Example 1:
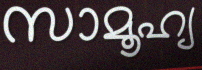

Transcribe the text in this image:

സാമൂഹ്യ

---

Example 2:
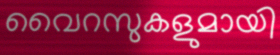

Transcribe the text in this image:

വൈറസുകളുമായി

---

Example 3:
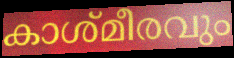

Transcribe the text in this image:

കാശ്മീരവും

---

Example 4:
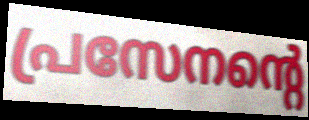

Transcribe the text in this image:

പ്രസേനന്റെ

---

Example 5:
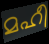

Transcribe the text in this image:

മഹീ